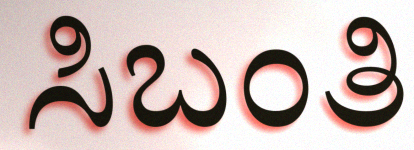
ಸಿಬಂತಿ